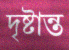
দৃষ্টান্ত